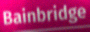
Bainbridge